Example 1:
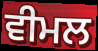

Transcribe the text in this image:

ਵੀਮਲ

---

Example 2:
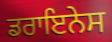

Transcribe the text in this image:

ਡਰਾਇਨੇਸ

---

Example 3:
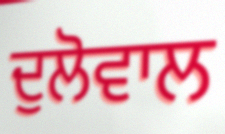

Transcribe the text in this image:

ਦੁਲੋਵਾਲ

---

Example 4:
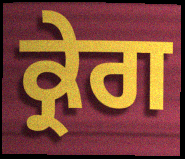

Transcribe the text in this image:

ਕ੍ਰੇਗ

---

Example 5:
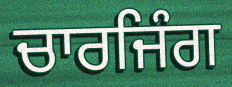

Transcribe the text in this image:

ਚਾਰਜਿੰਗ